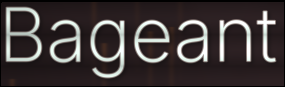
Bageant